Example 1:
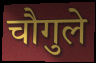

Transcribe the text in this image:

चौगुले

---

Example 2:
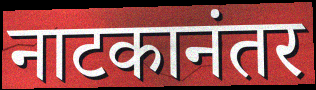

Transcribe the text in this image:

नाटकानंतर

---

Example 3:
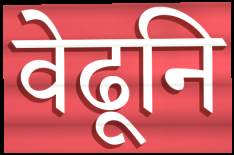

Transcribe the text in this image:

वेढूनि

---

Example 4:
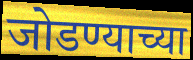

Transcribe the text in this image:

जोडण्याच्या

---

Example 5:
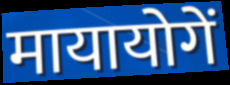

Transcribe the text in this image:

मायायोगें